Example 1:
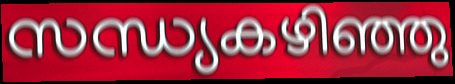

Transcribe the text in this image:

സന്ധ്യകഴിഞ്ഞു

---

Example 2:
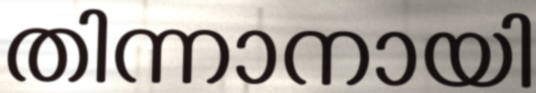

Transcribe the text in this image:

തിന്നാനായി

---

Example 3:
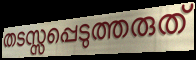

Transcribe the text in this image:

തടസ്സപ്പെടുത്തരുത്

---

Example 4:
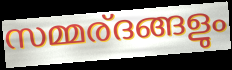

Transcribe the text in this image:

സമ്മര്ദങ്ങളും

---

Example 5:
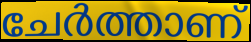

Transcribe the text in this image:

ചേർത്താണ്